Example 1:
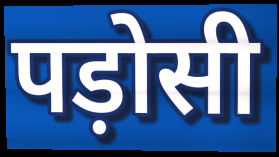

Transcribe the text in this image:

पड़ोसी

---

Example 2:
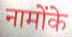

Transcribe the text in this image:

नामोंके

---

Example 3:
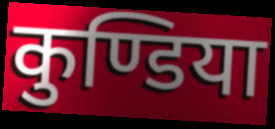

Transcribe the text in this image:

कुण्डिया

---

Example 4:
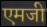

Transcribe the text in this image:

एमजी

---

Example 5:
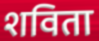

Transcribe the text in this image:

शविता